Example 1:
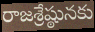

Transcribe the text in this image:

రాజశ్రేష్ఠునకు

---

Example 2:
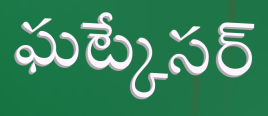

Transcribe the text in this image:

ఘట్కేసర్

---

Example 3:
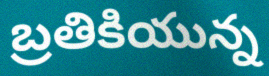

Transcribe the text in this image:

బ్రతికియున్న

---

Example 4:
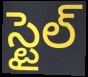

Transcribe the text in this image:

స్టైల్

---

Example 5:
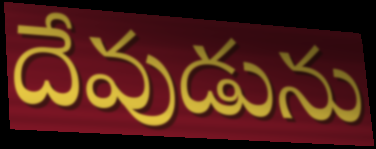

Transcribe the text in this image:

దేవుడును